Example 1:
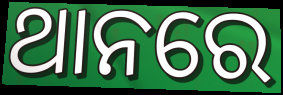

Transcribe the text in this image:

ଥାନରେ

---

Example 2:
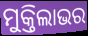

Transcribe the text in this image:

ମୁକ୍ତିଲାଭର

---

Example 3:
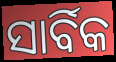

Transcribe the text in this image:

ସାର୍ବିକ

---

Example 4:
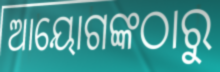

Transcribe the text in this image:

ଆୟୋଗଙ୍କଠାରୁ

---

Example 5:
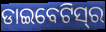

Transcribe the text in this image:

ଡାଇବେଟିସ୍‌ର